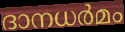
ദാനധർമം